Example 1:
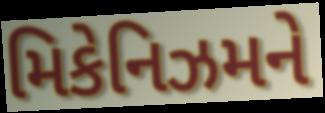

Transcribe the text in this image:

મિકેનિઝમને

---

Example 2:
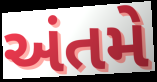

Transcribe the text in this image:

અંતમે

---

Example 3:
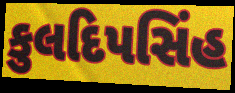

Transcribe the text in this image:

કુલદિપસિંહ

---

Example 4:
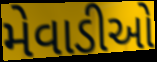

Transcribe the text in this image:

મેવાડીઓ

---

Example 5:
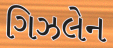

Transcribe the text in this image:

ગિઝલેન